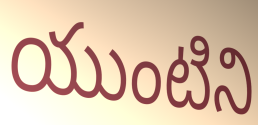
యుంటిని